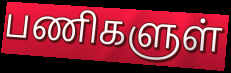
பணிகளுள்